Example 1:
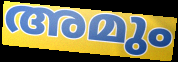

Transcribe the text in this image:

അമും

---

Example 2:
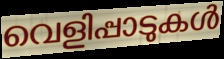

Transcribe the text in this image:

വെളിപ്പാടുകൾ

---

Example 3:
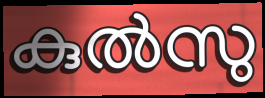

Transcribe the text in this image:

കുൽസു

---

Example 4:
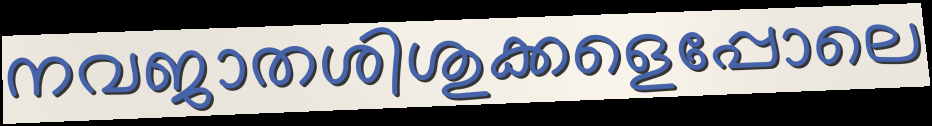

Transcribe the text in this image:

നവജാതശിശുക്കളെപ്പോലെ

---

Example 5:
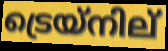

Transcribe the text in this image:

ട്രെയ്നില്